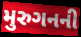
મુરુગનની